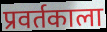
प्रवर्तकाला